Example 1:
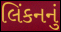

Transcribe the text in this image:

લિંકનનું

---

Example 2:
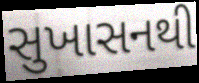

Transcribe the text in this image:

સુખાસનથી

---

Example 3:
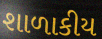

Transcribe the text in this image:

શાળાકીય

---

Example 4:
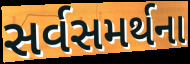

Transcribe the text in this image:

સર્વસમર્થના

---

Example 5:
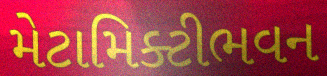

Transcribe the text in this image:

મેટામિક્ટીભવન